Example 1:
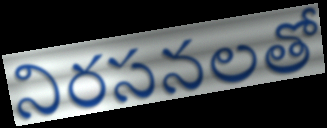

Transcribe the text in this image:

నిరసనలతో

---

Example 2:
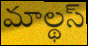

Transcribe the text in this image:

మాల్థస్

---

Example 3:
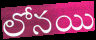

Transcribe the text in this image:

లోనయి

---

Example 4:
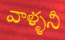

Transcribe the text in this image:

వాళ్ళనీ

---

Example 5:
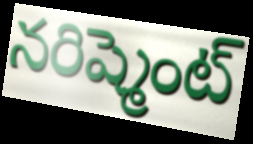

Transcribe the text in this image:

నరిష్మెంట్